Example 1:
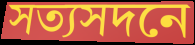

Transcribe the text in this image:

সত্যসদনে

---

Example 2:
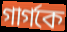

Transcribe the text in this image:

গার্গকে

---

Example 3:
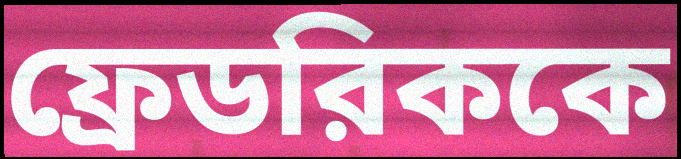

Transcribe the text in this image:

ফ্রেডরিককে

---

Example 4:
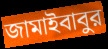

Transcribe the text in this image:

জামাইবাবুর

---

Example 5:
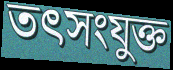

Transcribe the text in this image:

তৎসংযুক্ত